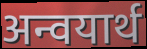
अन्वयार्थ